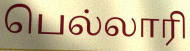
பெல்லாரி